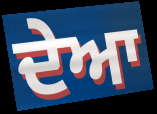
ਦੇਆ